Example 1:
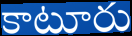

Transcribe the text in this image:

కాటూరు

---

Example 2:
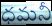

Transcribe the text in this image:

ధమనీ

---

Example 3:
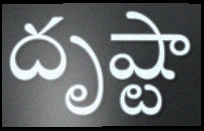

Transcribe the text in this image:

దృష్టా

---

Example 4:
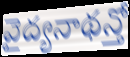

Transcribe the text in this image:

వైద్యనాథన్తో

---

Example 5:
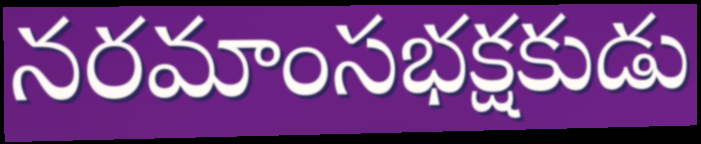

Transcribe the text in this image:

నరమాంసభక్షకుడు